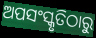
ଅପସଂସ୍କୃତିଠାରୁ